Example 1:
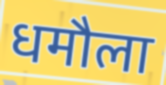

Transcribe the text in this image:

धमौला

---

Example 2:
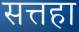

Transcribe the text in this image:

सत्तहा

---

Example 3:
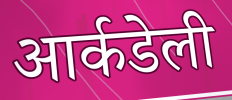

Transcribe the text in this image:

आर्कडेली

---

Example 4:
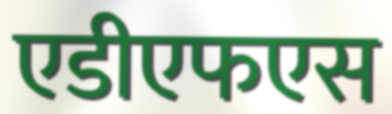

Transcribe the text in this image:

एडीएफएस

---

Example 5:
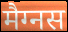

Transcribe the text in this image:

मैग्नस